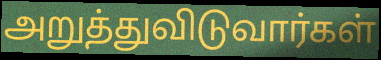
அறுத்துவிடுவார்கள்